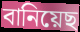
বানিয়েছ